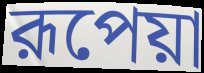
রূপেয়া